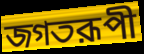
জগতরূপী